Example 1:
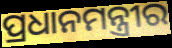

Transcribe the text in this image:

ପ୍ରଧାନମନ୍ତ୍ରୀର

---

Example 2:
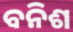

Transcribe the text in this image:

ବନିଶ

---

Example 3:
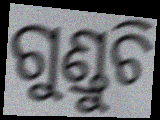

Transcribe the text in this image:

ଗୁଣ୍ଡୁଚି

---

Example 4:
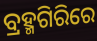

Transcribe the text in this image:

ବ୍ରହ୍ମଗିରିରେ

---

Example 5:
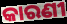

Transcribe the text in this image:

କାରଣୀ